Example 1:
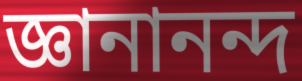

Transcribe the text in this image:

জ্ঞানানন্দ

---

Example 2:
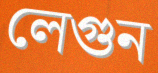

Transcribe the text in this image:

লেগুন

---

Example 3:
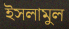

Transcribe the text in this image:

ইসলামুল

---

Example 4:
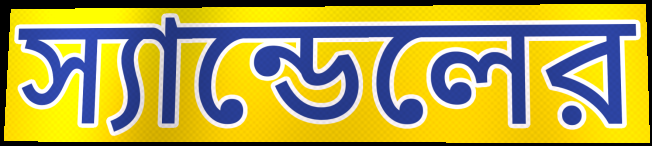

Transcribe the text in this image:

স্যান্ডেলের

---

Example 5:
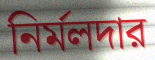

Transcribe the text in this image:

নির্মলদার